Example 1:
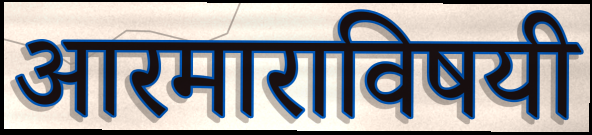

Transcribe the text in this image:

आरमाराविषयी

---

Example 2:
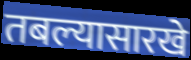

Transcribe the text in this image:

तबल्यासारखे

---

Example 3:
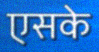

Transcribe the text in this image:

एसके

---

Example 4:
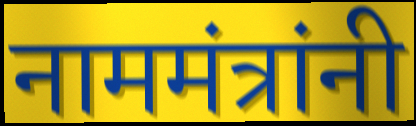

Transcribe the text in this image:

नाममंत्रांनी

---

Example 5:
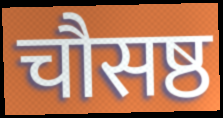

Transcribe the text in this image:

चौसष्ठ